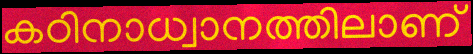
കഠിനാധ്വാനത്തിലാണ്